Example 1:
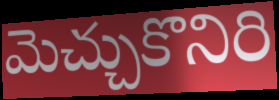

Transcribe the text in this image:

మెచ్చుకొనిరి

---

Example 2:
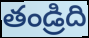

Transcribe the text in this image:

తండ్రిది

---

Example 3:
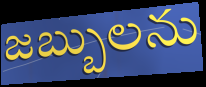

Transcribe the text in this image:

జబ్బులను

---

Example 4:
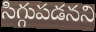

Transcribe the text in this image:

సిగ్గుపడనని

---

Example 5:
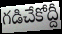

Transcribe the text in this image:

గడిచేకోద్దీ